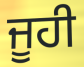
ਜੂਹੀ